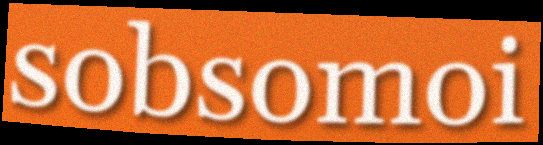
sobsomoi